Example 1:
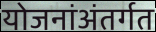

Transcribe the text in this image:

योजनांअंतर्गत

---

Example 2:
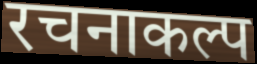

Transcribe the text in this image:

रचनाकल्प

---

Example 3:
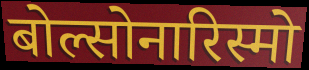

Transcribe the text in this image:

बोल्सोनारिस्मो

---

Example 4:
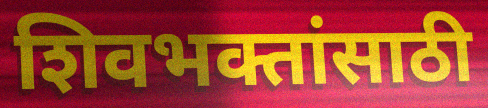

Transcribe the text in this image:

शिवभक्तांसाठी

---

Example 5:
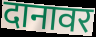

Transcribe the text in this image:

दानावर